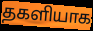
தகளியாக